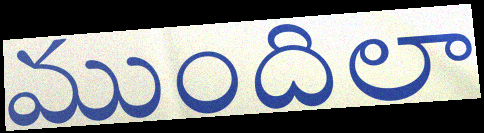
ముందిలా